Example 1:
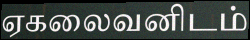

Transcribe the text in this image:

ஏகலைவனிடம்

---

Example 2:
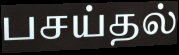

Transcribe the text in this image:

பசய்தல்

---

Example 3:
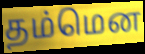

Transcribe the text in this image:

தம்மென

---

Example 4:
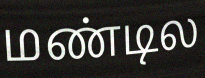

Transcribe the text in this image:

மண்டில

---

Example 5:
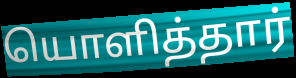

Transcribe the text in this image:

யொளித்தார்